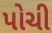
પોચી